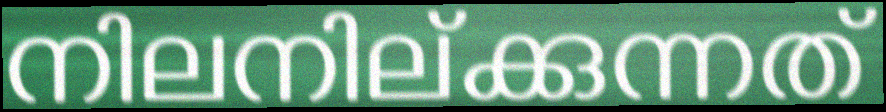
നിലനില്ക്കുന്നത്